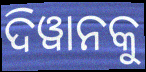
ଦିୱାନକୁ